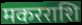
मकरराशि